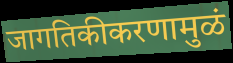
जागतिकीकरणामुळं